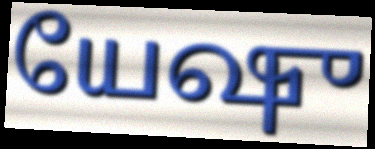
யேஷு